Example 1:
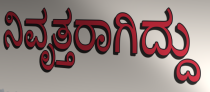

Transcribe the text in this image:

ನಿವೃತ್ತರಾಗಿದ್ದು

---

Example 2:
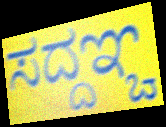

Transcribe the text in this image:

ಸದ್ದಞ್ಚ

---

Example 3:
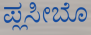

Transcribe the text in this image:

ಪ್ಲಸೀಬೊ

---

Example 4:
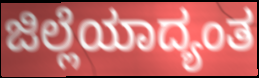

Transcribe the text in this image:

ಜಿಲ್ಲೆಯಾದ್ಯಂತ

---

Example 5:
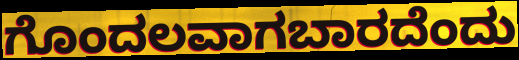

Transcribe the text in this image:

ಗೊಂದಲವಾಗಬಾರದೆಂದು